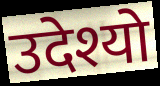
उदेश्यो